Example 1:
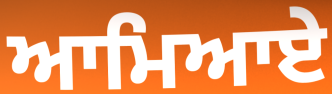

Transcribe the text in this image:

ਆਮਿਆਏ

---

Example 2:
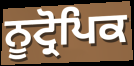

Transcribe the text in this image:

ਨੂਟ੍ਰੋਪਿਕ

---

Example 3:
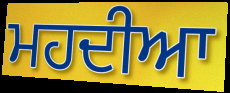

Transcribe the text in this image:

ਮਹਦੀਆ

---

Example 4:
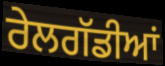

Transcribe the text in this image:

ਰੇਲਗੱਡੀਆਂ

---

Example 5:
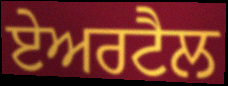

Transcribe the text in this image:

ਏਅਰਟੈਲ